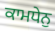
ਕਾਮਧੇਨੁ